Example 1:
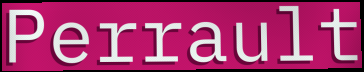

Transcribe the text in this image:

Perrault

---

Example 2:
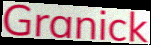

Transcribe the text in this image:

Granick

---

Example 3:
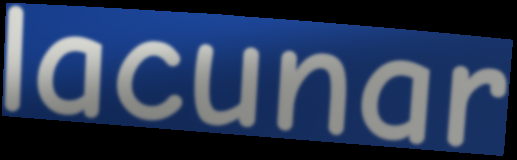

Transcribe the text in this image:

lacunar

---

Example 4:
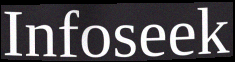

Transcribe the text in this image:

Infoseek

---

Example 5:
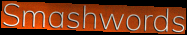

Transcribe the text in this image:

Smashwords